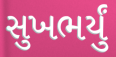
સુખભર્યું